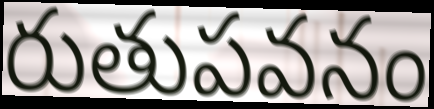
రుతుపవనం